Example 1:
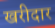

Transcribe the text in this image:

खरीदार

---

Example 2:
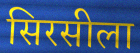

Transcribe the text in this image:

सिरसीला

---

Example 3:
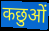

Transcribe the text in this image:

कछुओं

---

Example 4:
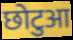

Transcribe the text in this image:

छोटुआ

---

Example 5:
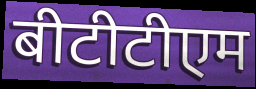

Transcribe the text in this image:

बीटीटीएम